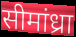
सीमांध्रा